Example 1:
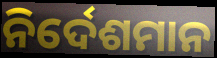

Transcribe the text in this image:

ନିର୍ଦେଶମାନ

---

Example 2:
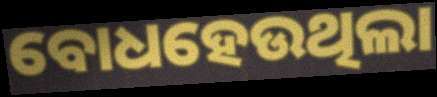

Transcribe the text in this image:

ବୋଧହେଉଥିଲା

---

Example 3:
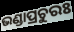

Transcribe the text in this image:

ଭଣ୍ଡାପ୍ରଚୁରଃ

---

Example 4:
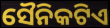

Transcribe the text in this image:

ସୈନିକଟିଏ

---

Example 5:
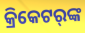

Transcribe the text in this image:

କ୍ରିକେଟର୍‌ଙ୍କ